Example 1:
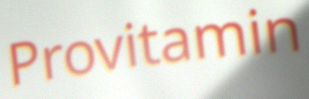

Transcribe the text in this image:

Provitamin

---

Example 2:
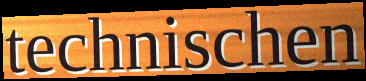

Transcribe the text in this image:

technischen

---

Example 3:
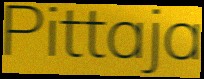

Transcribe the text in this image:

Pittaja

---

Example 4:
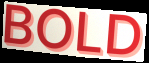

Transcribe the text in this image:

BOLD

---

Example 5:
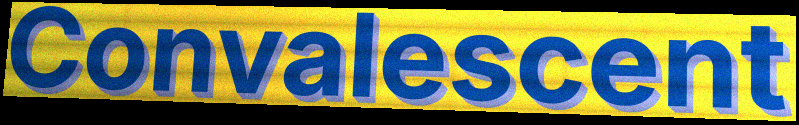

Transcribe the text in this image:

Convalescent